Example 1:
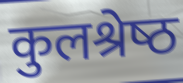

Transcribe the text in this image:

कुलश्रेष्‍ठ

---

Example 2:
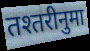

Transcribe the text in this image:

तश्तरीनुमा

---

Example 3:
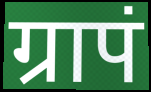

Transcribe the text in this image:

ग्रापं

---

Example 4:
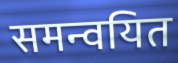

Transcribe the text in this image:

समन्वयित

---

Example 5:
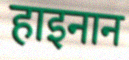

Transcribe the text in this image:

हाइनान